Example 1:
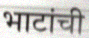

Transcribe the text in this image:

भाटांची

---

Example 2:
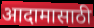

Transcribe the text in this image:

आदामासाठी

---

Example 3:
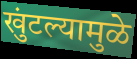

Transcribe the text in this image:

खुंटल्यामुळे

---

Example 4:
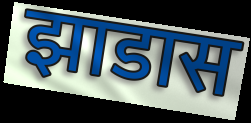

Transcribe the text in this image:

झाडास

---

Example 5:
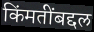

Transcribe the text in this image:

किंमतींबद्दल